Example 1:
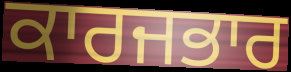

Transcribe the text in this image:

ਕਾਰਜਭਾਰ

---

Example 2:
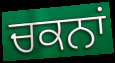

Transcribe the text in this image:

ਚਕਨਾਂ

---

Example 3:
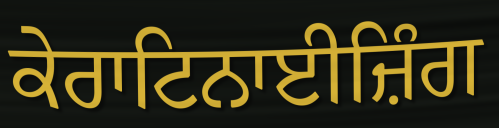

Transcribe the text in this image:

ਕੇਰਾਟਿਨਾਈਜ਼ਿੰਗ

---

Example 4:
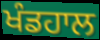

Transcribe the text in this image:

ਖੰਡਹਾਲ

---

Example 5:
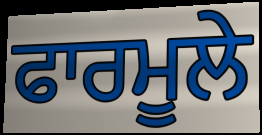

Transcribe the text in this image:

ਫਾਰਮੂਲੇ